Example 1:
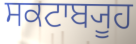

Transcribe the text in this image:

ਸਕਟਾਬ੍ਯੂਹ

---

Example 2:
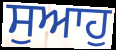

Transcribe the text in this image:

ਸੁਆਹੁ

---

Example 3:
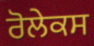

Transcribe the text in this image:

ਰੋਲੇਕਸ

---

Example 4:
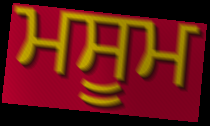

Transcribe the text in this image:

ਮਸੂਮ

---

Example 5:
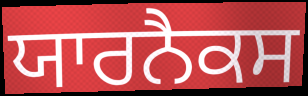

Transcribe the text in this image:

ਯਾਰਨੈਕਸ